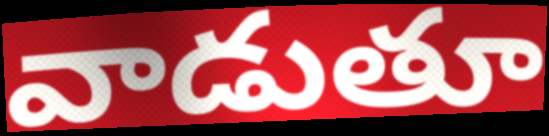
వాడుతూ